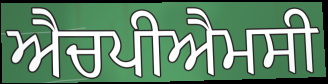
ਐਚਪੀਐਮਸੀ